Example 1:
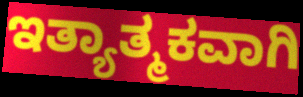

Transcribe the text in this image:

ಇತ್ಯಾತ್ಮಕವಾಗಿ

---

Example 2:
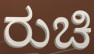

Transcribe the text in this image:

ರುಚಿ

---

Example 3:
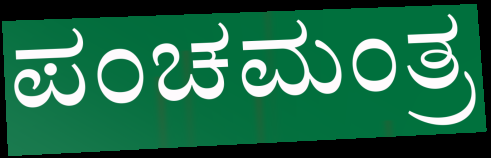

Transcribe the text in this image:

ಪಂಚಮಂತ್ರ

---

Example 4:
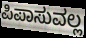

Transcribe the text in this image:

ಪಿಪಾಸುವಲ್ಲ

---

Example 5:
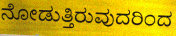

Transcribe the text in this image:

ನೋಡುತ್ತಿರುವುದರಿಂದ